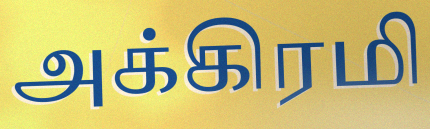
அக்கிரமி